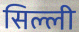
सिल्ली